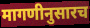
मागणीनुसारच